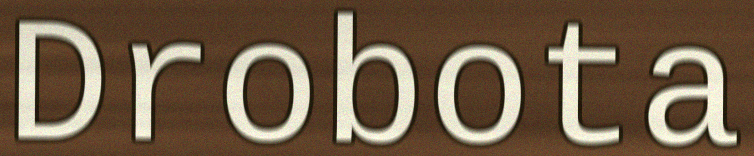
Drobota